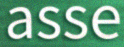
asse